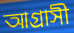
আগ্রাসী